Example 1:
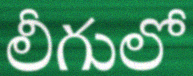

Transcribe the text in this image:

లీగులో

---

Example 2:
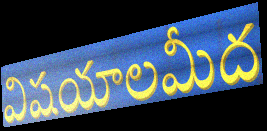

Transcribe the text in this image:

విషయాలమీద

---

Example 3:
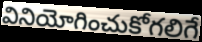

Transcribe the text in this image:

వినియోగించుకోగలిగే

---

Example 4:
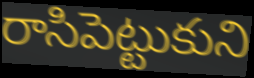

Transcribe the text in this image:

రాసిపెట్టుకుని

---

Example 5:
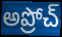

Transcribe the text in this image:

అప్రోచ్